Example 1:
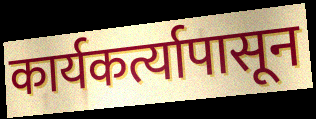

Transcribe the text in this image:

कार्यकर्त्यापासून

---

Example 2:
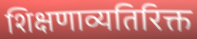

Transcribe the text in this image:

शिक्षणाव्यतिरिक्त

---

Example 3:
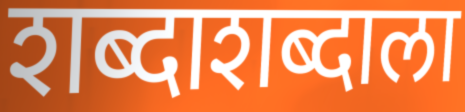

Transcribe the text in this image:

शब्दाशब्दाला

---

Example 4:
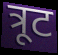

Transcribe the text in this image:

त्रूट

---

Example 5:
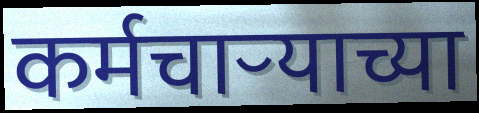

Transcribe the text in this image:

कर्मचाऱ्याच्या